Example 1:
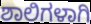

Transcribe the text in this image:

ಶಾಲಿಗಳಾಗಿ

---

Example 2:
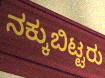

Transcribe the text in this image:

ನಕ್ಕುಬಿಟ್ಟರು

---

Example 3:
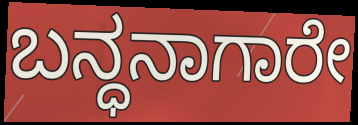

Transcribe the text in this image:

ಬನ್ಧನಾಗಾರೇ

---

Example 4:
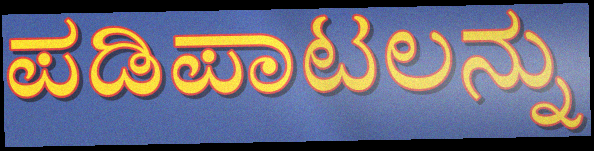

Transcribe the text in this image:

ಪಡಿಪಾಟಲನ್ನು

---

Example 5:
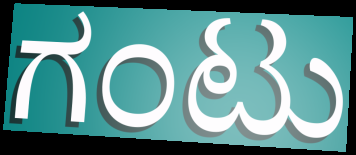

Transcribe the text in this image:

ಗಂಟು